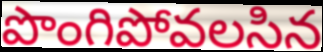
పొంగిపోవలసిన